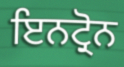
ਇਨਟ੍ਰੋਨ